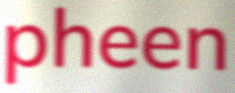
pheen